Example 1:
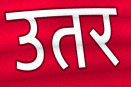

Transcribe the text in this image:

उतर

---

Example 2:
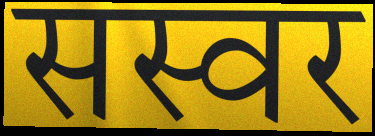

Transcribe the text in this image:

सस्वर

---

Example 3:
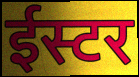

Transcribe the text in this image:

ईस्टर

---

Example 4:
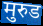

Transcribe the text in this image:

मुरुड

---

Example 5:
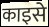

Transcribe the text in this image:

काइसे